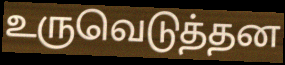
உருவெடுத்தன